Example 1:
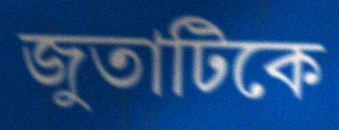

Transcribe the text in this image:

জুতাটিকে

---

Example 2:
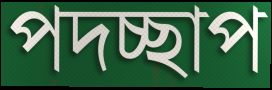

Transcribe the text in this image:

পদচ্ছাপ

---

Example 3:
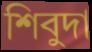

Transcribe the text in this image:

শিবুদা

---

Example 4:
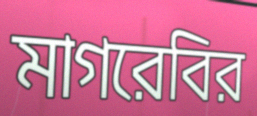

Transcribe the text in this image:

মাগরেবির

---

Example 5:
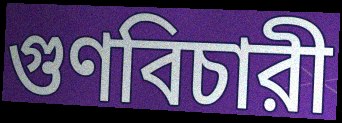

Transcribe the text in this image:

গুণবিচারী